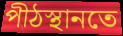
পীঠস্থানতে